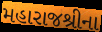
મહારાજશ્રીના